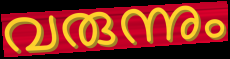
വരുന്നും